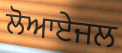
ਲੋਆਏਜਲ